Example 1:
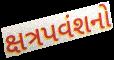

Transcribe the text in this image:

ક્ષત્રપવંશનો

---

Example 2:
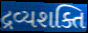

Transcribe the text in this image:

દ્રવ્યશક્તિ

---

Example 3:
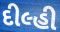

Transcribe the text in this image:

દીલ્હી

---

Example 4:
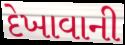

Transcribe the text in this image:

દેખાવાની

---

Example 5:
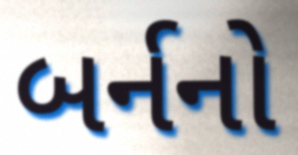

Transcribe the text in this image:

બર્નનો